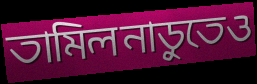
তামিলনাডুতেও